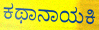
ಕಥಾನಾಯಕಿ